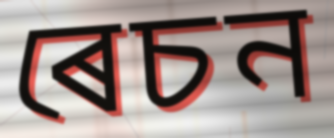
ৰেচন